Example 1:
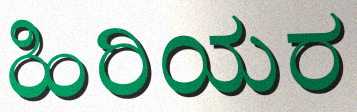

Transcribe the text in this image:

ಹಿರಿಯರ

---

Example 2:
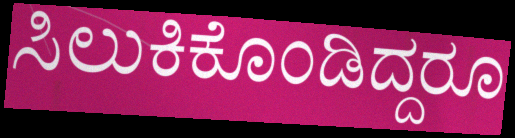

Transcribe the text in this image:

ಸಿಲುಕಿಕೊಂಡಿದ್ದರೂ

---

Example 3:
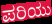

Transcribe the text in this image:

ಪರಿಯು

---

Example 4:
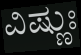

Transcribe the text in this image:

ವಿಷ್ಣುಃ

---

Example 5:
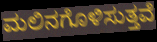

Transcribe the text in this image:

ಮಲಿನಗೊಳಿಸುತ್ತವೆ